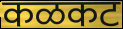
कळकट